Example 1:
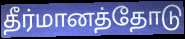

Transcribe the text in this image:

தீர்மானத்தோடு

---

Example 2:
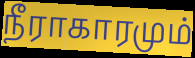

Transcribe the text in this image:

நீராகாரமும்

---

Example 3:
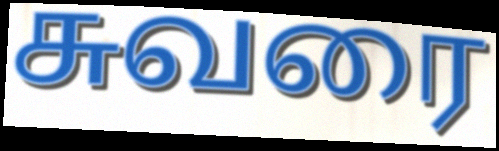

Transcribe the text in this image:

சுவரை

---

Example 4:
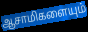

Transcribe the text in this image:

ஆசாமிகளையும்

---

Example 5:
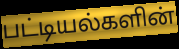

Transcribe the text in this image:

பட்டியல்களின்